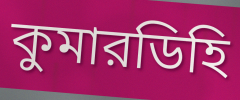
কুমারডিহি